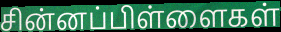
சின்னப்பிள்ளைகள்